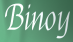
Binoy